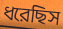
ধরেছিস